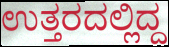
ಉತ್ತರದಲ್ಲಿದ್ದ